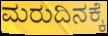
ಮರುದಿನಕ್ಕೆ